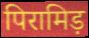
पिरामिड़